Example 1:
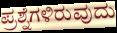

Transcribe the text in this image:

ಪ್ರಶ್ನೆಗಳಿರುವುದು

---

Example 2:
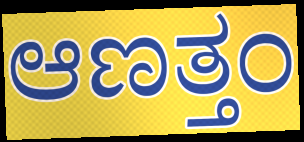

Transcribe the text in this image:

ಆಣತ್ತಂ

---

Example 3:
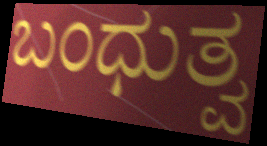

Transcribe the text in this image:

ಬಂಧುತ್ವ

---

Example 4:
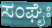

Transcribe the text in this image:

ಸಂಘೈಃ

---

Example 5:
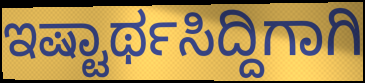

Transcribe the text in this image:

ಇಷ್ಟಾರ್ಥಸಿದ್ದಿಗಾಗಿ